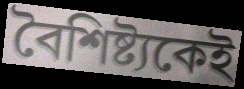
বৈশিষ্ট্যকেই